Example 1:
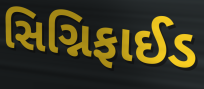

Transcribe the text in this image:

સિગ્નિફાઈડ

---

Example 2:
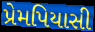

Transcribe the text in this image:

પ્રેમપિયાસી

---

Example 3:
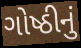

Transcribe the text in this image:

ગોષ્ઠીનું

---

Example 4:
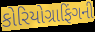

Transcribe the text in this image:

કોરિયોગ્રાફિંગની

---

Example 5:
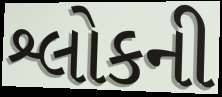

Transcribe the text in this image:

શ્લોકની